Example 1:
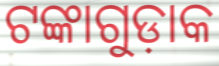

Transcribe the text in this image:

ଟଙ୍କାଗୁଡ଼ାକ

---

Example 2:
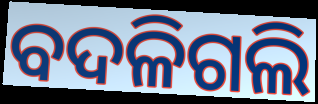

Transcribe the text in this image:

ବଦଳିଗଲି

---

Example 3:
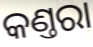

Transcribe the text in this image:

କଣ୍ତରା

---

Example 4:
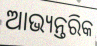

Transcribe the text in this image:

ଆଭ୍ୟନ୍ତରିକ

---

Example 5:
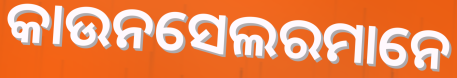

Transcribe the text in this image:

କାଉନସେଲରମାନେ